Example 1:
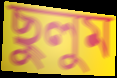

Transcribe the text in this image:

ছুলুম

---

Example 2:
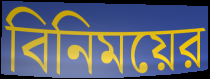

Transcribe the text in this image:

বিনিময়ের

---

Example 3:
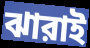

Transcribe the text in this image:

ঝারাই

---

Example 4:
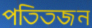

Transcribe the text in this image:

পতিতজন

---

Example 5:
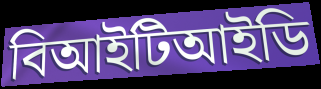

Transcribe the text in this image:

বিআইটিআইডি